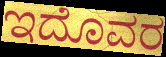
ಇದೊವರ